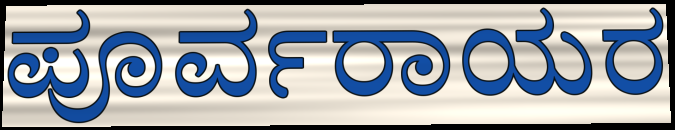
ಪೂರ್ವರಾಯರ